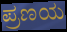
ಪ್ರಣಯ